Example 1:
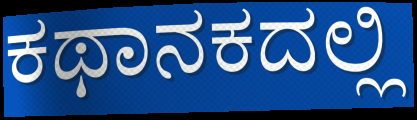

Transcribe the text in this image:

ಕಥಾನಕದಲ್ಲಿ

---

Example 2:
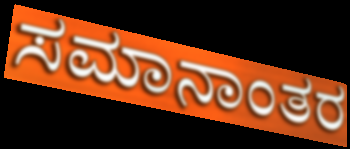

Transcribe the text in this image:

ಸಮಾನಾಂತರ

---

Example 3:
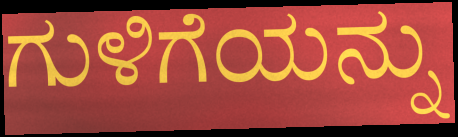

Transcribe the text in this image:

ಗುಳಿಗೆಯನ್ನು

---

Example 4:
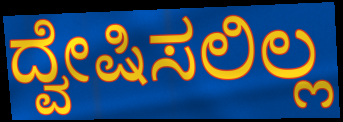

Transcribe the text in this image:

ದ್ವೇಷಿಸಲಿಲ್ಲ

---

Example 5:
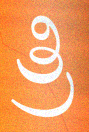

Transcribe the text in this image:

ತ್ರಿ